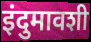
इंदुमावशी